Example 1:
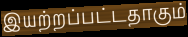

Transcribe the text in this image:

இயற்றப்பட்டதாகும்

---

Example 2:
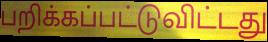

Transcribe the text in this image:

பறிக்கப்பட்டுவிட்டது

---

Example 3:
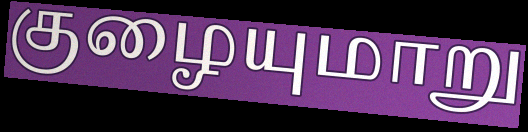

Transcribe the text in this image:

குழையுமாறு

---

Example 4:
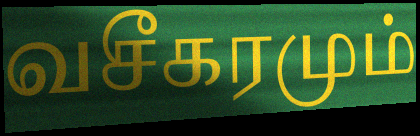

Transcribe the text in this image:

வசீகரமும்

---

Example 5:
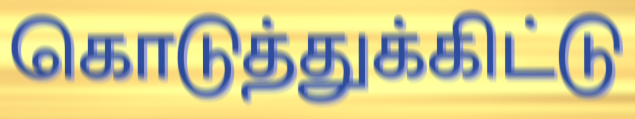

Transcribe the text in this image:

கொடுத்துக்கிட்டு